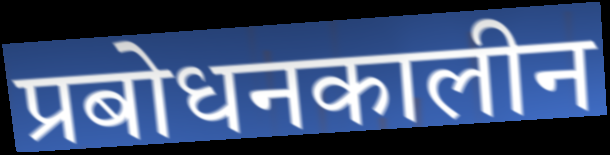
प्रबोधनकालीन